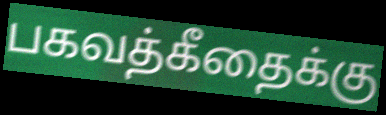
பகவத்கீதைக்கு